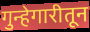
गुन्हेगारीतून